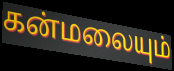
கன்மலையும்